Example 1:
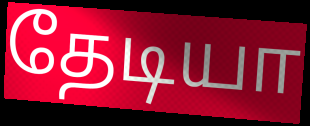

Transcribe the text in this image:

தேடியா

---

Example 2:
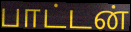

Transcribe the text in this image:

பாட்டன்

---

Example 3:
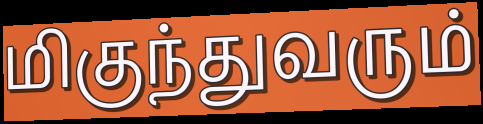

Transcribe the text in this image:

மிகுந்துவரும்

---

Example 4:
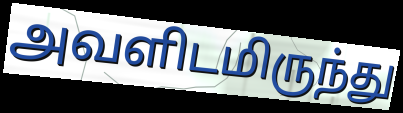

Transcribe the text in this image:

அவளிடமிருந்து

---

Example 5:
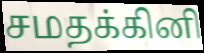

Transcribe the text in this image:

சமதக்கினி